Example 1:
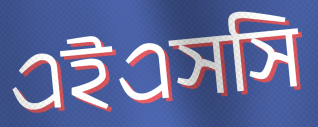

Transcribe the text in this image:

এইএসসি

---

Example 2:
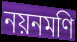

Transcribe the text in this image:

নয়নমণি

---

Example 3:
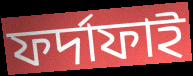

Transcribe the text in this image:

ফর্দাফাই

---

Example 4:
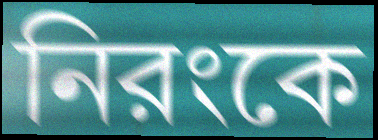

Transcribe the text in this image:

নিরংকে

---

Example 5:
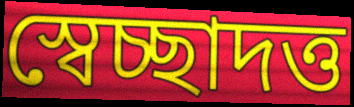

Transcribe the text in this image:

স্বেচ্ছাদত্ত